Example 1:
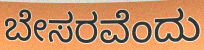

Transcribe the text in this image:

ಬೇಸರವೆಂದು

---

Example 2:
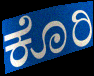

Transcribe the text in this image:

ಕೊರಿ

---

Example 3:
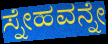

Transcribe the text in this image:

ಸ್ನೇಹವನ್ನೇ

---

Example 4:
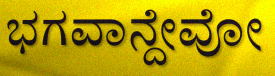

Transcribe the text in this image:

ಭಗವಾನ್ದೇವೋ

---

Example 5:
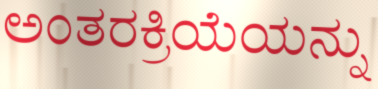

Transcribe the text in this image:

ಅಂತರಕ್ರಿಯೆಯನ್ನು